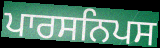
ਪਾਰਸਨਿਪਸ